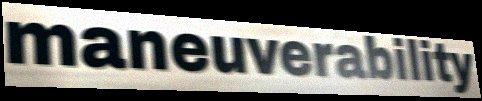
maneuverability